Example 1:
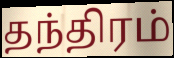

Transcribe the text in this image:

தந்திரம்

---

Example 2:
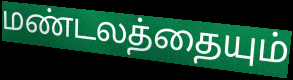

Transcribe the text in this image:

மண்டலத்தையும்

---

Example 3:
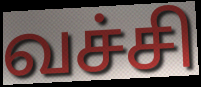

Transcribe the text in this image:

வச்சி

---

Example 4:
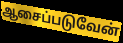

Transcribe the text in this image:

ஆசைப்படுவேன்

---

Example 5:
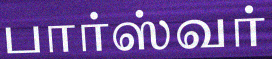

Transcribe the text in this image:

பார்ஸ்வர்